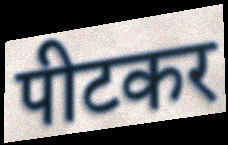
पीटकर